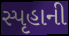
સ્પૃહાની